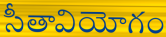
సీతావియోగం